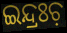
ଇନ୍ଦ୍ରଃଚ଼